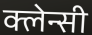
क्लेन्सी